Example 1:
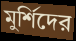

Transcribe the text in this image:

মুর্শিদের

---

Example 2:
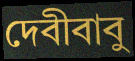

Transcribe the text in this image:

দেবীবাবু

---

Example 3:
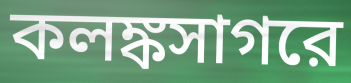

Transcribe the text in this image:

কলঙ্কসাগরে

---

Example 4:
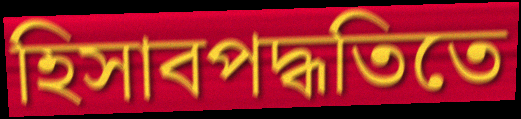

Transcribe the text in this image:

হিসাবপদ্ধতিতে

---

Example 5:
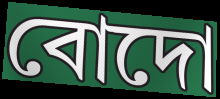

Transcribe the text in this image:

বোদো